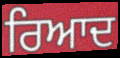
ਰਿਆਦ